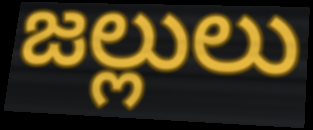
జల్లులు